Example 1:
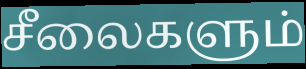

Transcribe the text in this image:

சீலைகளும்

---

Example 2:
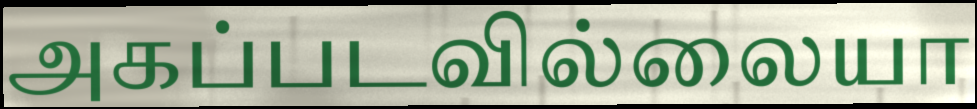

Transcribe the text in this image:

அகப்படவில்லையா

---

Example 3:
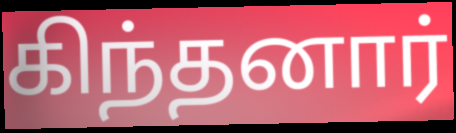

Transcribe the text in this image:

கிந்தனார்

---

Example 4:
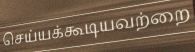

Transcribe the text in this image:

செய்யக்கூடியவற்றை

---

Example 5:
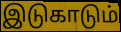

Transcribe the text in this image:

இடுகாடும்